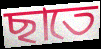
ছাতে